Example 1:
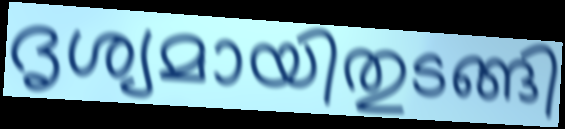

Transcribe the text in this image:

ദൃശ്യമായിതുടങ്ങി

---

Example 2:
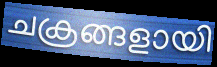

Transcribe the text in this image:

ചക്രങ്ങളായി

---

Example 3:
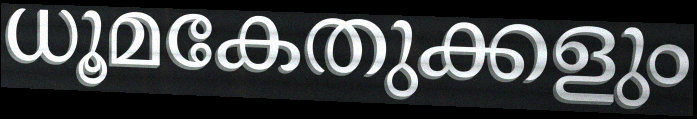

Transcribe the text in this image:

ധൂമകേതുക്കളും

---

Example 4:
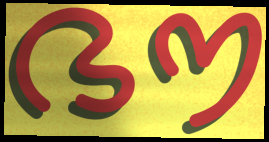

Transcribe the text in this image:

ഭൗ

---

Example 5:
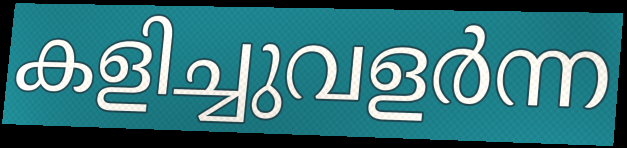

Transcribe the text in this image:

കളിച്ചുവളർന്ന